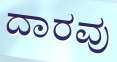
ದಾರವು